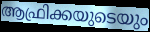
ആഫ്രിക്കയുടെയും